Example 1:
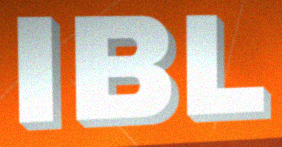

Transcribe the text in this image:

IBL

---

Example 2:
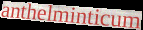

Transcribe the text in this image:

anthelminticum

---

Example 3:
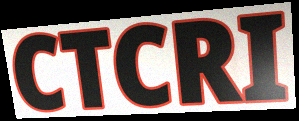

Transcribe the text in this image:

CTCRI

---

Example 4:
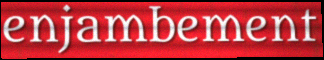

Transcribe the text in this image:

enjambement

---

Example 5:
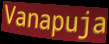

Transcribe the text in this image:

Vanapuja